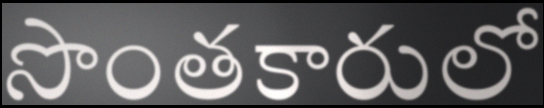
సొంతకారులో